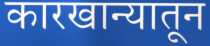
कारखान्यातून